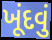
ખૂંદવું